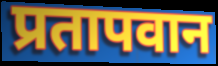
प्रतापवान